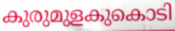
കുരുമുളകുകൊടി